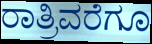
ರಾತ್ರಿವರೆಗೂ